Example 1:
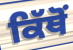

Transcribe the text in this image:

ਕਿੱਥੋੰ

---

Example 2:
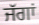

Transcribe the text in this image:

ਜੱਗਾਂ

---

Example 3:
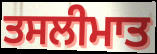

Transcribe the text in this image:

ਤਸਲੀਮਾਤ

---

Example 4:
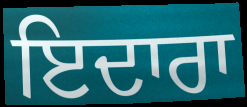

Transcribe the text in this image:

ਇਦਾਰਾ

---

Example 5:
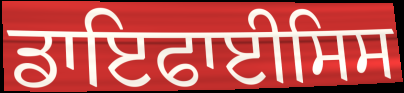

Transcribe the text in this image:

ਡਾਇਫਾਈਸਿਸ